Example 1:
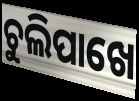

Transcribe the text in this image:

ଚୁଲିପାଖେ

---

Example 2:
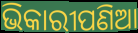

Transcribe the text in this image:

ଭିକାରୀପଣିଆ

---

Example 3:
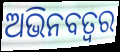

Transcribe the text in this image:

ଅଭିନବତ୍ୱର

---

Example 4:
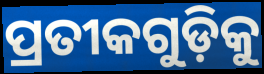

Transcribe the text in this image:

ପ୍ରତୀକଗୁଡ଼ିକୁ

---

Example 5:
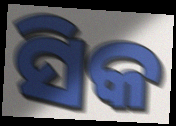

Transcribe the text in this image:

ସିକ